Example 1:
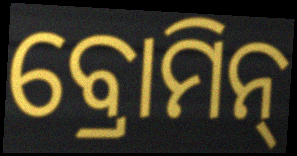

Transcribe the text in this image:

ବ୍ରୋମିନ୍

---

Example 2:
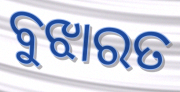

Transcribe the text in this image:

ବୁଝାରତ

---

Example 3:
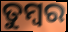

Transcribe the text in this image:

ତୁମ୍ବର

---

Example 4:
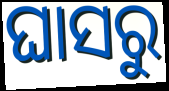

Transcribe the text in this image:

ଘାସରୁ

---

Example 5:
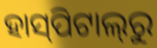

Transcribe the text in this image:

ହାସ୍‍ପିଟାଲ୍‍ରୁ